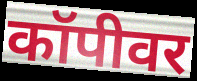
कॉपीवर